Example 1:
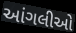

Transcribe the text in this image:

આંગલીઓ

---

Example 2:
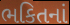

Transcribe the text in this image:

ભકિતનાં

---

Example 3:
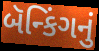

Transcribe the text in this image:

બૅન્કિંગનું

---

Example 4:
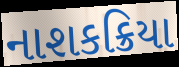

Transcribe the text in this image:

નાશકક્રિયા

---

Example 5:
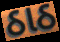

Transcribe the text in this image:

ઠાઠ